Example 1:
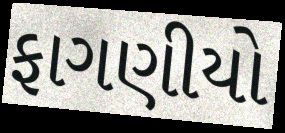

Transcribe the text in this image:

ફાગણીયો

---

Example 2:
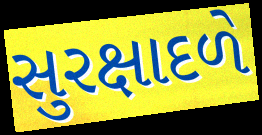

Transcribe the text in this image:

સુરક્ષાદળે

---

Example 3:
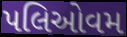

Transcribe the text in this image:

પલિઓવમ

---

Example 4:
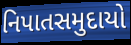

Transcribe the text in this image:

નિપાતસમુદાયો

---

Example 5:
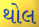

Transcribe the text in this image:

થોલ